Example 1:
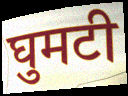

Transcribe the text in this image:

घुमटी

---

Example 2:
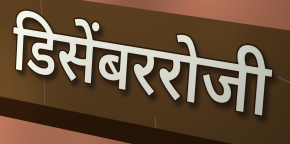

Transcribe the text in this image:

डिसेंबररोजी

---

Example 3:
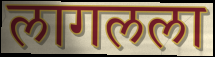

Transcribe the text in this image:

लागलला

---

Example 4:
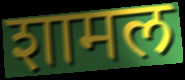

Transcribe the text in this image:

शामल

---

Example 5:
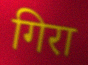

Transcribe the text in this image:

गिरा